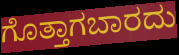
ಗೊತ್ತಾಗಬಾರದು